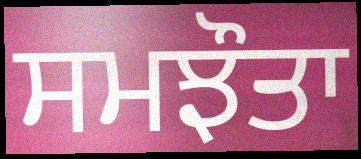
ਸਮਝੌਤਾ